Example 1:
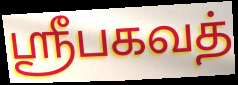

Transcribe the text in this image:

ஸ்ரீபகவத்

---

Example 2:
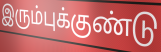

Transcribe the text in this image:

இரும்புக்குண்டு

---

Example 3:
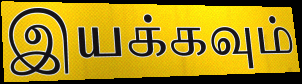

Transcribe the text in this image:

இயக்கவும்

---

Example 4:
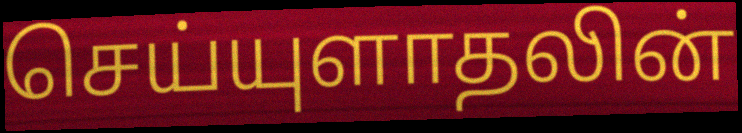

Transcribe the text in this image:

செய்யுளாதலின்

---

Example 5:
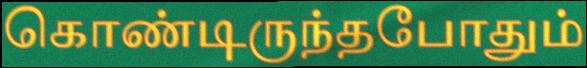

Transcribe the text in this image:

கொண்டிருந்தபோதும்